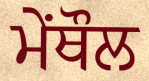
ਮੇਂਥੌਲ